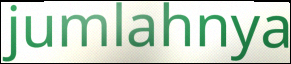
jumlahnya